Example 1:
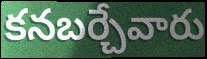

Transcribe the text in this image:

కనబర్చేవారు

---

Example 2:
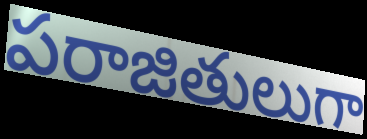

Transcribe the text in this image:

పరాజితులుగా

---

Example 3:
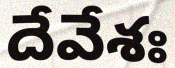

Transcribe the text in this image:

దేవేశః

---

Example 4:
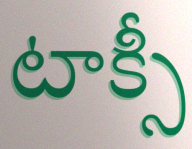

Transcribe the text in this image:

టాక్సీ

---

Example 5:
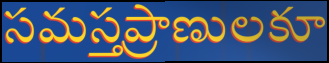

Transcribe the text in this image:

సమస్తప్రాణులకూ